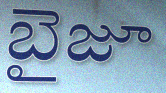
బైజూ